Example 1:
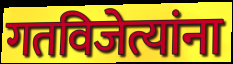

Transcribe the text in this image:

गतविजेत्यांना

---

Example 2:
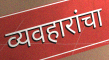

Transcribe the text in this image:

व्यवहारांचा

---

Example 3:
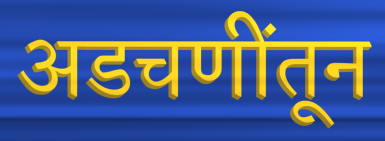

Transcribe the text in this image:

अडचणींतून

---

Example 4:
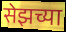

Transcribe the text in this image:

सेझच्या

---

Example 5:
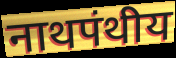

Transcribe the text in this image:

नाथपंथीय